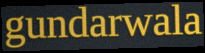
gundarwala